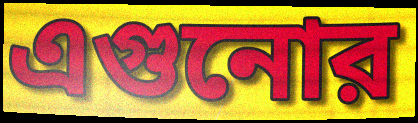
এগুনোর